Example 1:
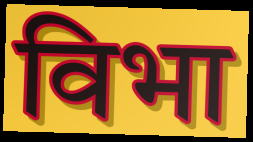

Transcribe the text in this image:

विभा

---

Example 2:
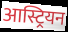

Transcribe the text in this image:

आस्ट्रियन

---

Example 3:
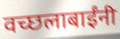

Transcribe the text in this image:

वच्छलाबाईंनी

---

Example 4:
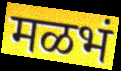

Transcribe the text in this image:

मळभं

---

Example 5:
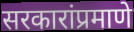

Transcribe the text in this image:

सरकारांप्रमाणे